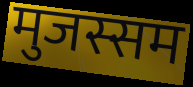
मुजस्सम